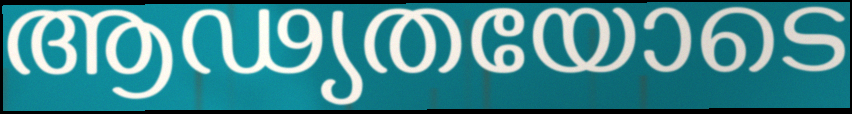
ആഢ്യതയോടെ